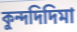
কুন্দদিদিমা